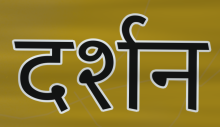
दर्शन